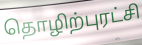
தொழிற்புரட்சி